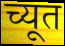
च्यूत